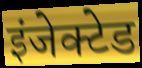
इंजेक्टेड